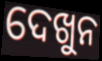
ଦେଖୁନ